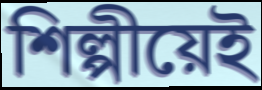
শিল্পীয়েই